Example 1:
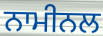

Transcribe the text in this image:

ਨਾਮੀਨਲ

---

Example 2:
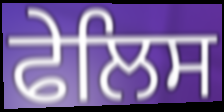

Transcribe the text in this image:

ਫੇਲਿਸ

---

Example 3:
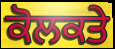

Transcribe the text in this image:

ਕੋਲਕਤੇ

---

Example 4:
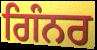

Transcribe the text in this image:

ਗਿੰਨਰ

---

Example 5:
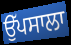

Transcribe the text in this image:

ਉੱਪਸਾਲਾ